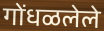
गोंधळलेले